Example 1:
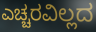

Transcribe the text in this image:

ಎಚ್ಚರವಿಲ್ಲದ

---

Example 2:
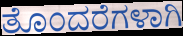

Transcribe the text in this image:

ತೊಂದರೆಗಳಾಗಿ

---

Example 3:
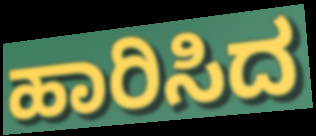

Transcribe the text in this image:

ಹಾರಿಸಿದ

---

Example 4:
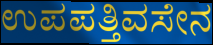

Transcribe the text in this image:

ಉಪಪತ್ತಿವಸೇನ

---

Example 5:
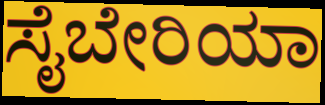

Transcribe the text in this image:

ಸೈಬೇರಿಯಾ